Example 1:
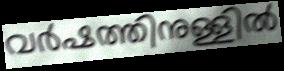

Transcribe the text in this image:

വർഷത്തിനുള്ളിൽ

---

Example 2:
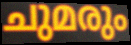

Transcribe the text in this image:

ചുമരും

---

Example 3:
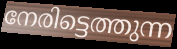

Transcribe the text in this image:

നേരിട്ടെത്തുന്ന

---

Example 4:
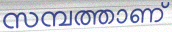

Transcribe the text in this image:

സമ്പത്താണ്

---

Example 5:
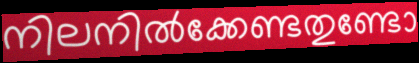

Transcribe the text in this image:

നിലനിൽക്കേണ്ടതുണ്ടോ